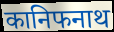
कानिफनाथ